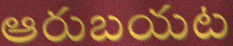
ఆరుబయట